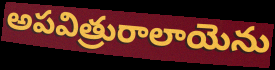
అపవిత్రురాలాయెను